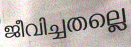
ജീവിച്ചതല്ലെ